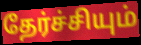
தேர்ச்சியும்